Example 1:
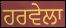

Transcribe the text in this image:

ਹਰਵੇਲਾ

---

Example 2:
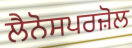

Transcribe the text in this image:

ਲੈਨੋਸਪਰਜ਼ੋਲ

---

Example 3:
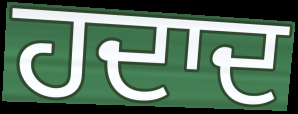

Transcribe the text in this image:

ਹਦਾਦ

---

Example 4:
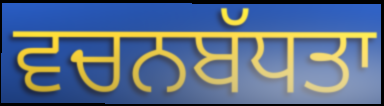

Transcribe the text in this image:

ਵਚਨਬੱਧਤਾ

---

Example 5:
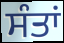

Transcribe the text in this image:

ਸੰਤਾਂ